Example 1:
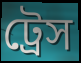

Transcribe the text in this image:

ট্রেস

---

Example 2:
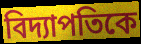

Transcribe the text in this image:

বিদ্যাপতিকে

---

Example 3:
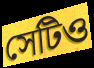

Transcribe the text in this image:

সেটিও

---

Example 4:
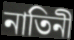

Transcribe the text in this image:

নাতিনী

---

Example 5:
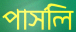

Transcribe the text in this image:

পার্সলি